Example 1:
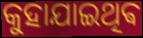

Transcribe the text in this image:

କୁହାଯାଇଥିଵ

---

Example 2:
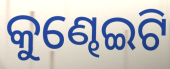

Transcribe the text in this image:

କୁଣ୍ଢେଇଟି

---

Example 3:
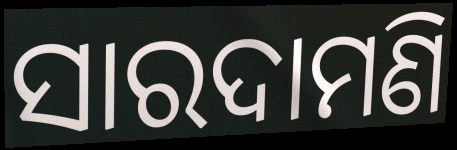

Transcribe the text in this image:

ସାରଦାମଣି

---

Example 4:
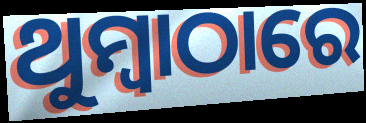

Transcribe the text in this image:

ଥୁମ୍ବାଠାରେ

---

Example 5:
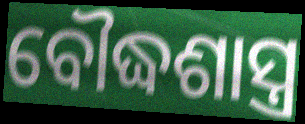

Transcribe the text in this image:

ବୌଦ୍ଧଶାସ୍ତ୍ର